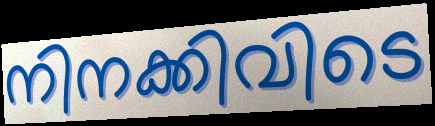
നിനക്കിവിടെ